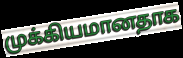
முக்கியமானதாக